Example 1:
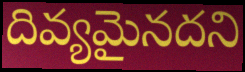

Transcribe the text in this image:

దివ్యమైనదని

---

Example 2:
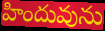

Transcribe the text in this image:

హిందువును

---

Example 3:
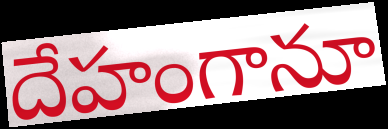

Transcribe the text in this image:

దేహంగానూ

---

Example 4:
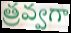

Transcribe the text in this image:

త్రవ్వగా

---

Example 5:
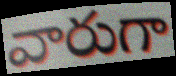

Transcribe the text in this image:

వారుగా